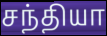
சந்தியா